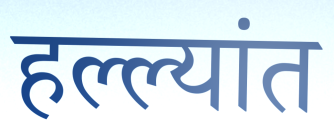
हल्ल्यांत